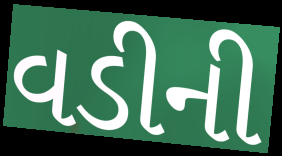
વડીની